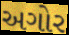
અગોર